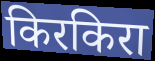
किरकिरा